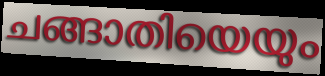
ചങ്ങാതിയെയും